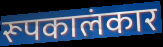
रूपकालंकार